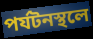
পর্যটনস্থলে